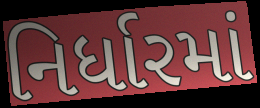
નિર્ધારમાં